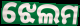
ଝେଲମ